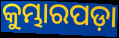
କୁମ୍ଭାରପଡ଼ା